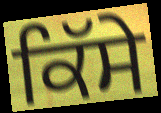
ਕਿੱਸੇ